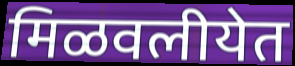
मिळवलीयेत